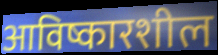
आविष्कारशील